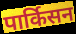
पार्किसन